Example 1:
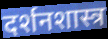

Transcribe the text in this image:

दर्शनशास्त्र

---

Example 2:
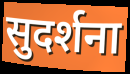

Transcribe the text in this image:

सुदर्शना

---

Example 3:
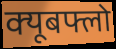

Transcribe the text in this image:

क्यूबफ्लो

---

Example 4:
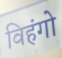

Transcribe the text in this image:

विहंगो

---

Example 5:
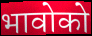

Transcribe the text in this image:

भावोको